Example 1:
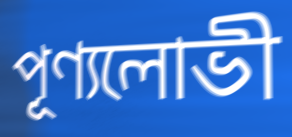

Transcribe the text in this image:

পূণ্যলোভী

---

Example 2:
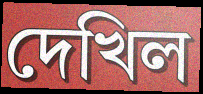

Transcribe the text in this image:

দেখিল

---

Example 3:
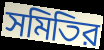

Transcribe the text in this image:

সমিতির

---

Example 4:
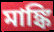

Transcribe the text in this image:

মাঙ্কি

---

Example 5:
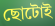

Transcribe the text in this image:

ছোটোই